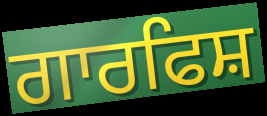
ਗਾਰਫਿਸ਼